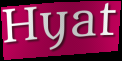
Hyat